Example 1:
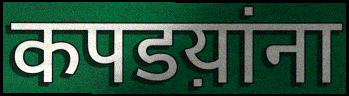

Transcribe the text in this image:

कपडय़ांना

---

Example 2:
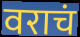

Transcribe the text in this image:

वराचं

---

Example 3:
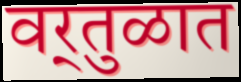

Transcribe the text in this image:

वर्तुळात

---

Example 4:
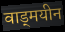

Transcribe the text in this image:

वाड्‌मयीन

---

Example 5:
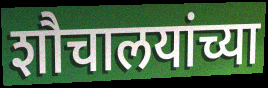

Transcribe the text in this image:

शौचालयांच्या